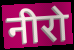
नीरो